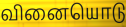
வினையொடு